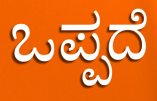
ಒಪ್ಪದೆ